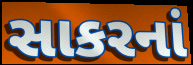
સાકરનાં